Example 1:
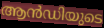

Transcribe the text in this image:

ആൻഡിയുടെ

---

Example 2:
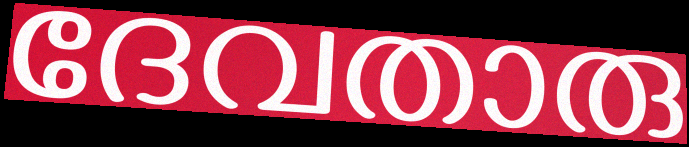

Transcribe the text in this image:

ദേവതാരു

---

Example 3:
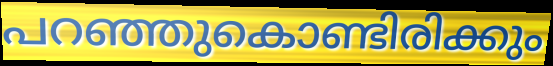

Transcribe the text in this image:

പറഞ്ഞുകൊണ്ടിരിക്കും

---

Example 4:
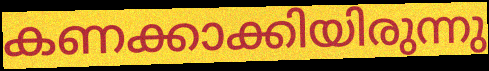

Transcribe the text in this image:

കണക്കാക്കിയിരുന്നു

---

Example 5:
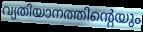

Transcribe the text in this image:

വ്യതിയാനത്തിന്റെയും